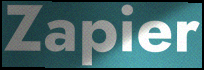
Zapier